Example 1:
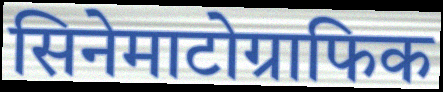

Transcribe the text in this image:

सिनेमाटोग्राफिक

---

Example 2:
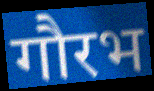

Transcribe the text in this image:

गौरभ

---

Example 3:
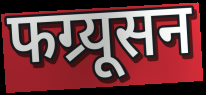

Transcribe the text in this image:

फग्र्यूसन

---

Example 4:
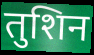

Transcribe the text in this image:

तुशिन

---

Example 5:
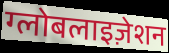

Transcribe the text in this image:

ग्लोबलाइज़ेशन